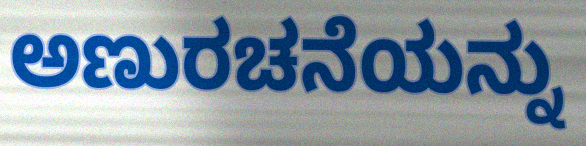
ಅಣುರಚನೆಯನ್ನು